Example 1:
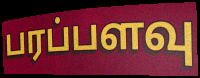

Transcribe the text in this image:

பரப்பளவு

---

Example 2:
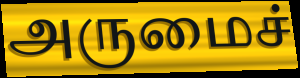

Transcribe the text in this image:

அருமைச்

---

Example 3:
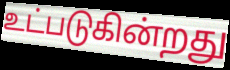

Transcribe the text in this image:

உட்படுகின்றது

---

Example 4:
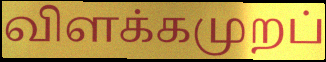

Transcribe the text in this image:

விளக்கமுறப்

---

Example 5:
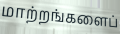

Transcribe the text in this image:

மாற்றங்களைப்